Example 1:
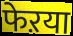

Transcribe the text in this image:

फेऱया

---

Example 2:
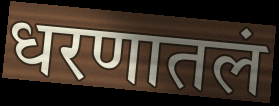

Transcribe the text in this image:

धरणातलं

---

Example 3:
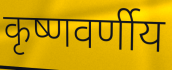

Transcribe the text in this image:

कृष्णवर्णीय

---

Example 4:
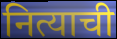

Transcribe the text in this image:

नित्याची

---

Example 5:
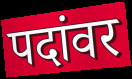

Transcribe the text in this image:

पदांवर